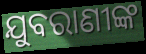
ଯୁବରାଣୀଙ୍କ